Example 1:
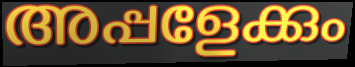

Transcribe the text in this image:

അപ്പളേക്കും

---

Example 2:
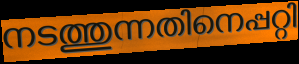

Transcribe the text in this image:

നടത്തുന്നതിനെപ്പറ്റി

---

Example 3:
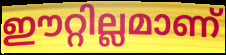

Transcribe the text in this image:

ഈറ്റില്ലമാണ്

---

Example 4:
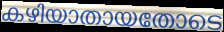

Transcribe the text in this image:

കഴിയാതായതോടെ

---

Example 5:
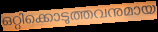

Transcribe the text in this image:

ഒറ്റിക്കൊടുത്തവനുമായ